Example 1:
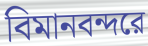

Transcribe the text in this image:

বিমানবন্দরে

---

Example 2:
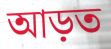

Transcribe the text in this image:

আড়ত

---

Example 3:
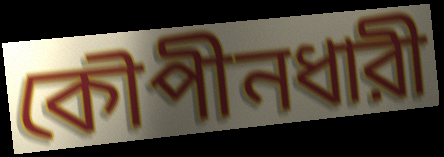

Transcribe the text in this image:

কৌপীনধারী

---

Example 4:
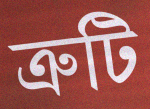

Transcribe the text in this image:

ত্রুটি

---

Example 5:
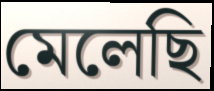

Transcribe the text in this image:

মেলেছি